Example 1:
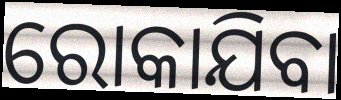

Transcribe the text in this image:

ରୋକାଯିବା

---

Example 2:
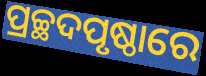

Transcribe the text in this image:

ପ୍ରଚ୍ଛଦପୃଷ୍ଠାରେ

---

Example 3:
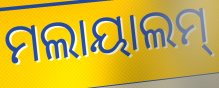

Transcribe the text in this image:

ମଲାୟାଲମ୍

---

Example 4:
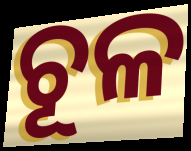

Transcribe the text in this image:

ଚୂଳ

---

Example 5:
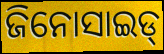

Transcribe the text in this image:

ଜିନୋସାଇଡ୍